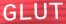
GLUT